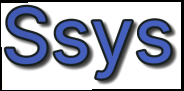
Ssys